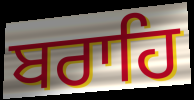
ਬਰਾਹਿ